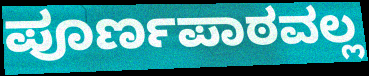
ಪೂರ್ಣಪಾಠವಲ್ಲ